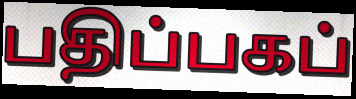
பதிப்பகப்